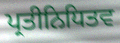
ਪ੍ਰਤੀਨਿਧਿਤਵ